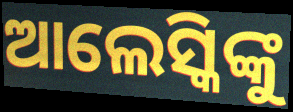
ଆଲେସ୍କିଙ୍କୁ